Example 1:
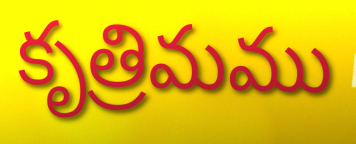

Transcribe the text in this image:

కృత్రిమము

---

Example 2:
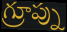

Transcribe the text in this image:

గ్రూప్ను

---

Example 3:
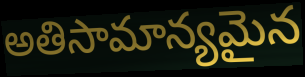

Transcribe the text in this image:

అతిసామాన్యమైన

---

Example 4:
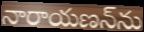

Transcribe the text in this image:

నారాయణన్‌ను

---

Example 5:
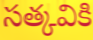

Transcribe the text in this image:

సత్కవికి